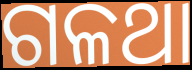
ଗଳଥା